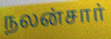
நலன்சார்